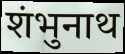
शंभुनाथ